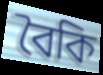
বৈকি